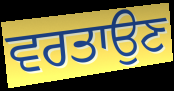
ਵਰਤਾਉਣ